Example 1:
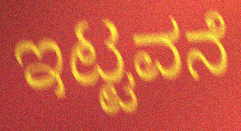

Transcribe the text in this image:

ಇಟ್ಟವನೆ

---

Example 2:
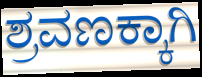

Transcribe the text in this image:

ಶ್ರವಣಕ್ಕಾಗಿ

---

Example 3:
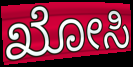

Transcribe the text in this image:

ಖೋಸಿ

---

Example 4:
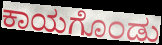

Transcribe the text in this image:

ಕಾಯಗೊಂಡು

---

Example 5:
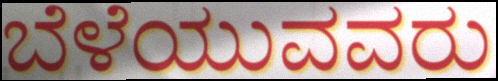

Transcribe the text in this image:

ಬೆಳೆಯುವವರು